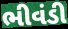
ભીવંડી